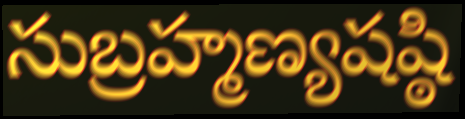
సుబ్రహ్మణ్యషష్ఠి